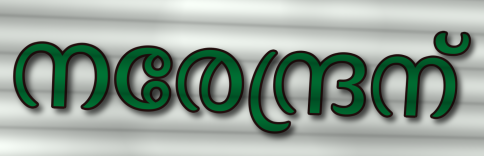
നരേന്ദ്രന്